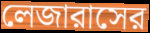
লেজারাসের